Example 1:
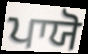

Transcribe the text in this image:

ਪਾਯੋ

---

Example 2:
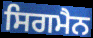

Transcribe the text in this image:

ਸਿਗਮੈਨ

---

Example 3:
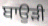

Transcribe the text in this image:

ਬਾਉੜੀ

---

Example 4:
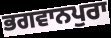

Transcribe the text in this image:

ਭਗਵਾਨਪੁਰਾ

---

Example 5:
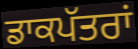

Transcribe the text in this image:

ਡਾਕਪੱਤਰਾਂ